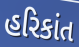
હરિકાંત